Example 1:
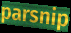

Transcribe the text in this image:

parsnip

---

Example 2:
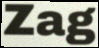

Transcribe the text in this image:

Zag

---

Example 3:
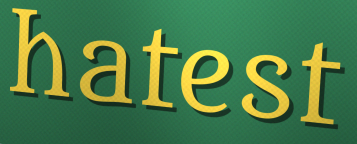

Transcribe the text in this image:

hatest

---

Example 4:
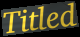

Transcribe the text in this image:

Titled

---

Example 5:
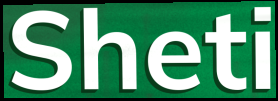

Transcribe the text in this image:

Sheti